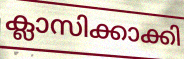
ക്ലാസിക്കാക്കി